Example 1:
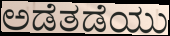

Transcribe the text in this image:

ಅಡೆತಡೆಯು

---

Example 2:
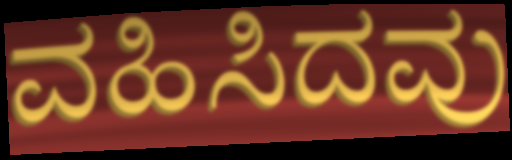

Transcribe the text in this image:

ವಹಿಸಿದವು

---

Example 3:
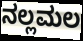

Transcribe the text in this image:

ನಲ್ಲಮಲ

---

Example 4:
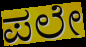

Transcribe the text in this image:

ಪಲೇ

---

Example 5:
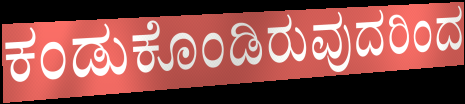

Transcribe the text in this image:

ಕಂಡುಕೊಂಡಿರುವುದರಿಂದ